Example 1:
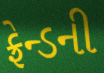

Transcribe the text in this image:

ફ્રેન્ડની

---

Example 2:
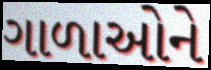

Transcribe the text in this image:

ગાળાઓને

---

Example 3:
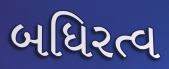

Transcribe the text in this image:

બધિરત્વ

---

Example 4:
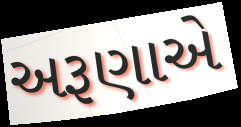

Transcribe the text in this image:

અરૂણાએ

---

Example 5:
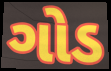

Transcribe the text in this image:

ગોડ